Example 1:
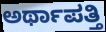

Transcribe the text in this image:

ಅರ್ಥಾಪತ್ತಿ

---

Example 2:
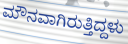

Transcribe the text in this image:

ಮೌನವಾಗಿರುತ್ತಿದ್ದಳು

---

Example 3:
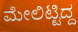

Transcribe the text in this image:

ಮೇಲಿಟ್ಟಿದ್ದ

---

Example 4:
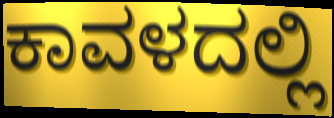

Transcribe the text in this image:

ಕಾವಳದಲ್ಲಿ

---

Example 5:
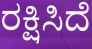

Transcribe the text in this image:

ರಕ್ಷಿಸಿದೆ